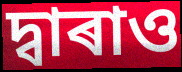
দ্বাৰাও